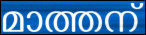
മാത്തന്